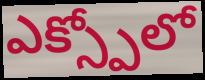
ఎక్స్పోలో